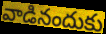
వాడినందుకు